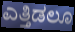
ಎತ್ತಿಡಲೂ